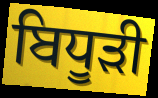
ਬਿਧੂੜੀ